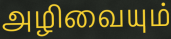
அழிவையும்